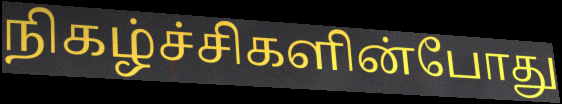
நிகழ்ச்சிகளின்போது